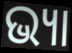
ଭ୍ୟା